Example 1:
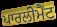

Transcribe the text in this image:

ਪਾਰਲੀਮੈਂਟ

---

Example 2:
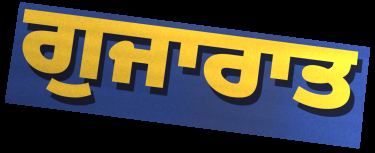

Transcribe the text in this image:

ਗੁਜਾਰਾਤ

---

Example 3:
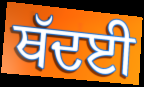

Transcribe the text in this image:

ਥੱਦਈ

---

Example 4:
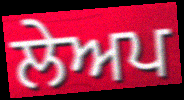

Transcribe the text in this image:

ਲੇਅਪ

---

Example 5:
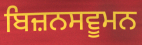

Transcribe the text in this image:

ਬਿਜ਼ਨਸਵੂਮਨ